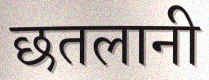
छतलानी